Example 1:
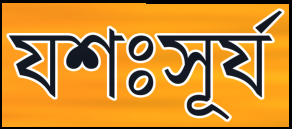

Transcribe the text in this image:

যশঃসূর্য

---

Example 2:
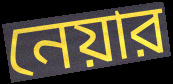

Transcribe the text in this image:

নেয়ার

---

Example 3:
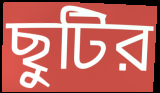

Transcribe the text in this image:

ছুটির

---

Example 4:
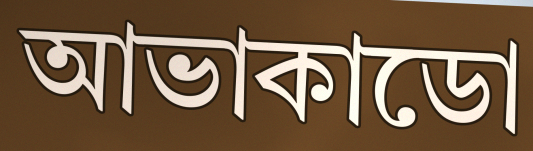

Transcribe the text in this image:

আভাকাডো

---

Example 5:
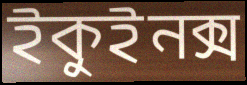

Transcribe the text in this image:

ইকুইনক্স